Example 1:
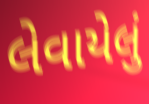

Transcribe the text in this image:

લેવાયેલું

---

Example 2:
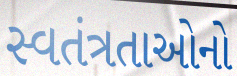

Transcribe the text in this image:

સ્વતંત્રતાઓનો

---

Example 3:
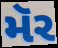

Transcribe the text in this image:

મૅર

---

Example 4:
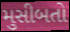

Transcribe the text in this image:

મુસીબતો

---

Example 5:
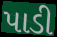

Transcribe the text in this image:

પાડી